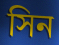
সিন